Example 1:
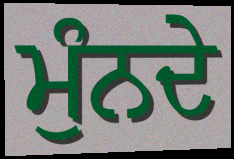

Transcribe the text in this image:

ਮੁੰਨਦੇ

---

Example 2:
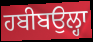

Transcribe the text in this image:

ਹਬੀਬਉਲ੍ਹਾ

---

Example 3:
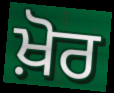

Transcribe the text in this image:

ਖ਼ੋਰ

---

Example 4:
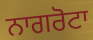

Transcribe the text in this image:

ਨਾਗਰੋਟਾ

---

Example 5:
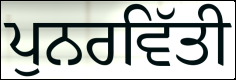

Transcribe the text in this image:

ਪੁਨਰਵਿੱਤੀ